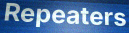
Repeaters